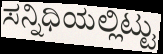
ಸನ್ನಿಧಿಯಲ್ಲಿಟ್ಟು